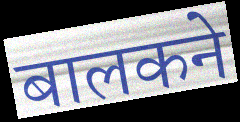
बालकने